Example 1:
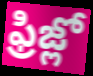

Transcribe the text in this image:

ఫ్రిజ్లో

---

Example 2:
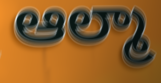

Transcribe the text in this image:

ఆల్మా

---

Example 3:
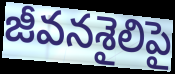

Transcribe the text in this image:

జీవనశైలిపై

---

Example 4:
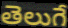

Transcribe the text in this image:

తెలుగే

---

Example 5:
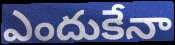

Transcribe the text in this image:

ఎందుకేనా